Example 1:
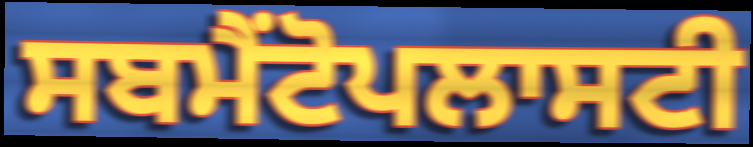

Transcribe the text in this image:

ਸਬਮੈਂਟੋਪਲਾਸਟੀ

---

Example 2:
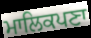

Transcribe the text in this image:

ਮਾਲਿਕਪਣਾ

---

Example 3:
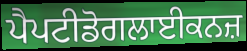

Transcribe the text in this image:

ਪੈਪਟੀਡੋਗਲਾਈਕਨਜ਼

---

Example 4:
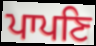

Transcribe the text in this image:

ਪਾਪਣਿ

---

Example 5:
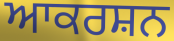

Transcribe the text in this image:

ਆਕਰਸ਼ਨ